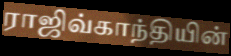
ராஜிவ்காந்தியின்